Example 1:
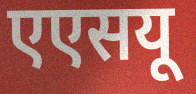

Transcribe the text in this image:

एएसयू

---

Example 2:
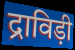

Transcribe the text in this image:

द्राविड़ी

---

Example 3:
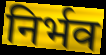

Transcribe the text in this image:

निर्भव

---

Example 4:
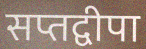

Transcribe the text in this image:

सप्तद्वीपा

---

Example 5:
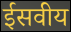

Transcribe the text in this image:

ईसवीय